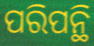
ପରିପନ୍ଥି